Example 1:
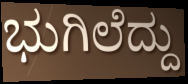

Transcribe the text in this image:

ಭುಗಿಲೆದ್ದು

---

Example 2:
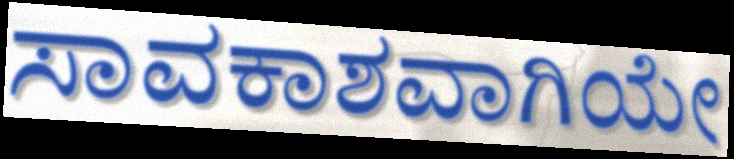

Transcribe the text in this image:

ಸಾವಕಾಶವಾಗಿಯೇ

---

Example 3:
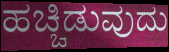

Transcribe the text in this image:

ಹಚ್ಚಿಡುವುದು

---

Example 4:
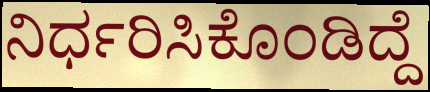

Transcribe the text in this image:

ನಿರ್ಧರಿಸಿಕೊಂಡಿದ್ದೆ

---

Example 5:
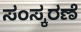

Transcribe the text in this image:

ಸಂಸ್ಕರಣೆ